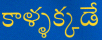
కాళ్ళక్కడే